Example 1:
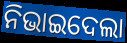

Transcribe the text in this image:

ନିଭାଇଦେଲା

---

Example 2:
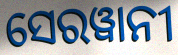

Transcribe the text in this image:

ସେରୱାନୀ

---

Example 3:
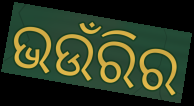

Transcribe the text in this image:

ଭଉଁରିର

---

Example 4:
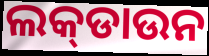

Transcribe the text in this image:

ଲକ୍‍ଡାଉନ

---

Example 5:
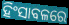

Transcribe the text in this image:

ହିଂସାବଳରେ